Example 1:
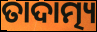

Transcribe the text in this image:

ତାଦାତ୍ମ୍ୟ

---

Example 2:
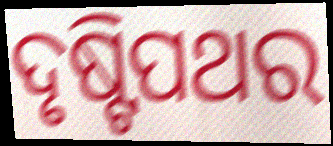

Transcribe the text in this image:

ଦୃଷ୍ଟିପଥର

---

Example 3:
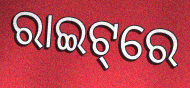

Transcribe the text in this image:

ରାଇଟ୍‌ରେ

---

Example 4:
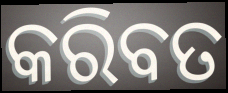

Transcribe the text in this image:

କରିବତ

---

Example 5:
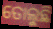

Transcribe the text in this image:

ତୋଲୁଛି